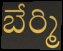
బేర్మి